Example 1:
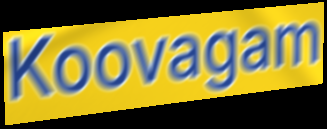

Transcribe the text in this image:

Koovagam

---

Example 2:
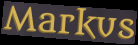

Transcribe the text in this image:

Markus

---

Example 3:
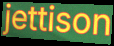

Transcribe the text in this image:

jettison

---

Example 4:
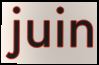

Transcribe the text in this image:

juin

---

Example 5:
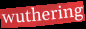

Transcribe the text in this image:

wuthering